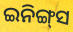
ଇନିଙ୍ଗ୍‌ସ